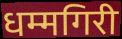
धम्मगिरी